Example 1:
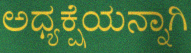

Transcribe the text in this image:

ಅಧ್ಯಕ್ಷೆಯನ್ನಾಗಿ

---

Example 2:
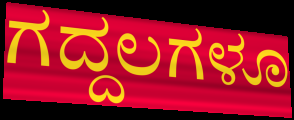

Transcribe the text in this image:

ಗದ್ದಲಗಳೂ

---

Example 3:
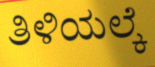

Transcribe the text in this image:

ತಿಳಿಯಲ್ಕೆ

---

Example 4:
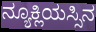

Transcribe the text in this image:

ನ್ಯೂಕ್ಲಿಯಸ್ಸಿನ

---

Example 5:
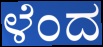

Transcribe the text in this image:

ಳೆಂದ